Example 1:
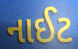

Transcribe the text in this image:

નાઈટ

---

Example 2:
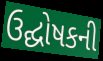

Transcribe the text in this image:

ઉદ્ઘોષકની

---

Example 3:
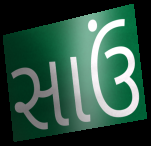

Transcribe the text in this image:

સાઉં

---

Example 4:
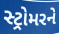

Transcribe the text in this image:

સ્ટ્રોમરને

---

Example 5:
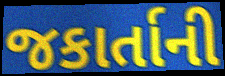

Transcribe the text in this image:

જકાર્તાની